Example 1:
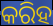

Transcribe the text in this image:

କରିହ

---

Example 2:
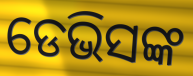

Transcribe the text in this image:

ଡେଭିସଙ୍କ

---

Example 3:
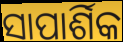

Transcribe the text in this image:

ସାପାର୍ଶିକ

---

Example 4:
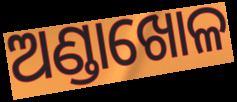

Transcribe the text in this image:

ଅଣ୍ଡାଖୋଳ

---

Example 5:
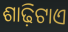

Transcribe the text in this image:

ଶାଢ଼ିଟାଏ